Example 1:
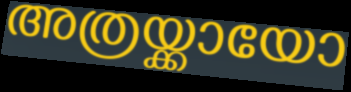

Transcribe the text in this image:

അത്രയ്ക്കായോ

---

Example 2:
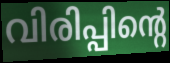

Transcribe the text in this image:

വിരിപ്പിന്റെ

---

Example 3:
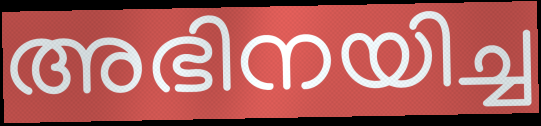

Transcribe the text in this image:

അഭിനയിച്ച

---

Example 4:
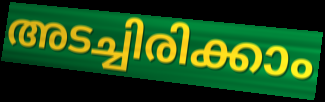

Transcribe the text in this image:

അടച്ചിരിക്കാം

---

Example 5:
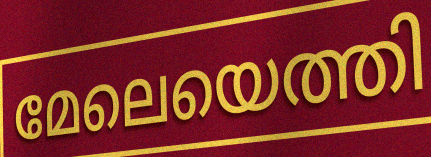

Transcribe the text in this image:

മേലെയെത്തി